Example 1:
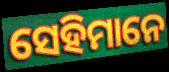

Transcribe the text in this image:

ସେହିମାନେ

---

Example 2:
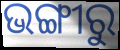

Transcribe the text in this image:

ଭଙ୍ଗୀରୁ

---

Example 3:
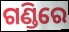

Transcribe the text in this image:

ଗଣ୍ଡିରେ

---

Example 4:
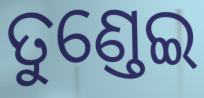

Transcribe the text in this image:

ତୁଣ୍ଡେଇ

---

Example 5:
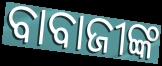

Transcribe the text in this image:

ବାବାଜୀଙ୍କ